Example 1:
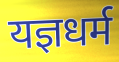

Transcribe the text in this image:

यज्ञधर्म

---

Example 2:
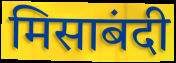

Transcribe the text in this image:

मिसाबंदी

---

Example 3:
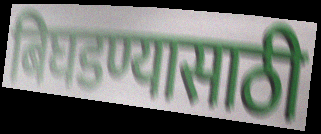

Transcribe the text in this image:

बिघडण्यासाठी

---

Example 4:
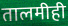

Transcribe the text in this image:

तालमीही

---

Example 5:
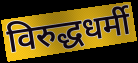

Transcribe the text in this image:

विरुद्धधर्मी